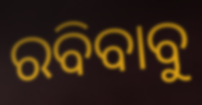
ରବିବାବୁ